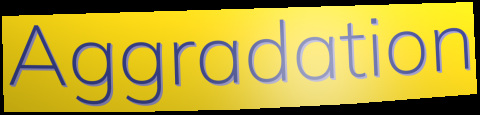
Aggradation